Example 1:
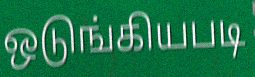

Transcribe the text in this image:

ஒடுங்கியபடி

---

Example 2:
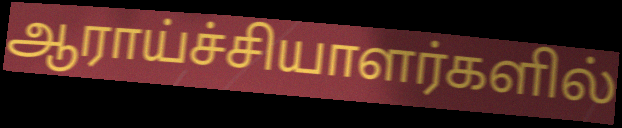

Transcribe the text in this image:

ஆராய்ச்சியாளர்களில்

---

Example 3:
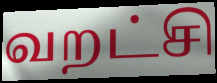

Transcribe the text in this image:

வறட்சி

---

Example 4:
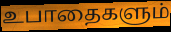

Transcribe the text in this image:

உபாதைகளும்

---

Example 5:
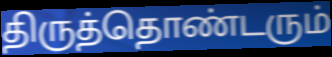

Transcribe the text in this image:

திருத்தொண்டரும்